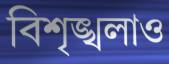
বিশৃঙ্খলাও